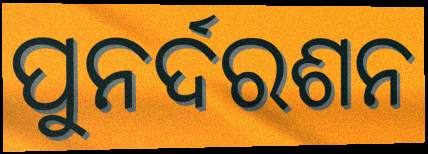
ପୁନର୍ଦରଶନ